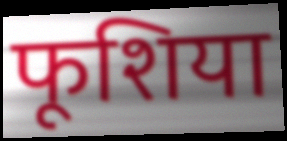
फूशिया